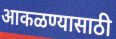
आकळण्यासाठी